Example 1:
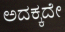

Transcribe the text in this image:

ಅದಕ್ಕದೇ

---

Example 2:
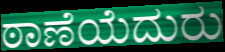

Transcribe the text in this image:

ಠಾಣೆಯೆದುರು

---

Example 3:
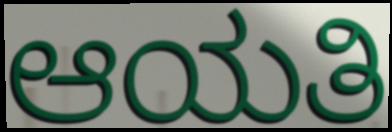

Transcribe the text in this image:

ಆಯತಿ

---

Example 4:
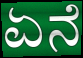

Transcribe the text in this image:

ಏನೆ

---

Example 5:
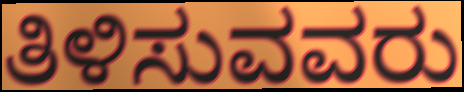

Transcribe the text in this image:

ತಿಳಿಸುವವರು